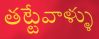
తట్టేవాళ్ళు